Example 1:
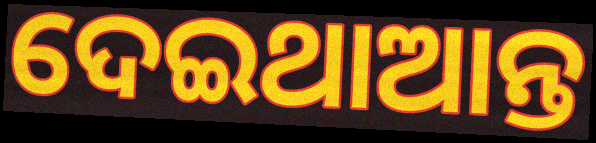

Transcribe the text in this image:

ଦେଇଥାଆନ୍ତ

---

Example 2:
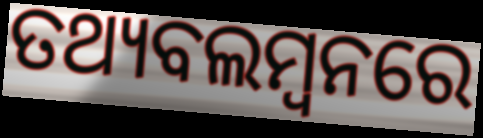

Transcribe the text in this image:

ତଥ୍ୟବଲମ୍ବନରେ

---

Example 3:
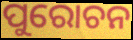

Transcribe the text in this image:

ପୁରୋଚନ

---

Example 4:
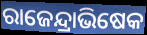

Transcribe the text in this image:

ରାଜେନ୍ଦ୍ରାଭିଷେକ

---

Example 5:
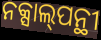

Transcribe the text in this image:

ନକ୍ସାଲ୍‌ପନ୍ଥୀ